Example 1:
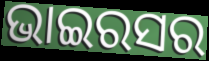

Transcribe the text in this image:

ଭାଇରସର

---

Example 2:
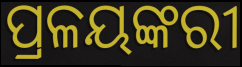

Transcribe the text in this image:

ପ୍ରଳୟଙ୍କରୀ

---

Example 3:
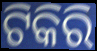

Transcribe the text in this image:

ଟିକିରି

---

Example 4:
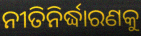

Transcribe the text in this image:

ନୀତିନିର୍ଦ୍ଧାରଣକୁ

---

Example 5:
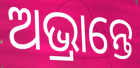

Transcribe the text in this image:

ଅଭ୍ରାନ୍ତେ